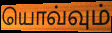
யொவ்வும்